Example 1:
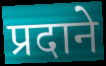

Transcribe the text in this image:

प्रदाने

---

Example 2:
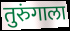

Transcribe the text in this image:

तुरुंगाला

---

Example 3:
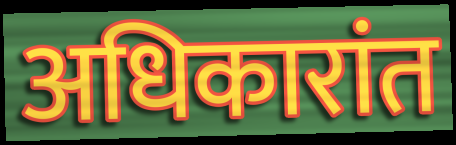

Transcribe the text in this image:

अधिकारांत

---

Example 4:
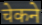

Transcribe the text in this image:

चेकने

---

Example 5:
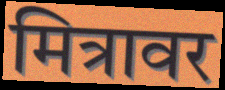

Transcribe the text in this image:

मित्रावर